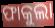
ଫାକୁଲା